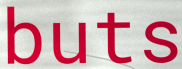
buts